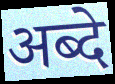
अब्दे